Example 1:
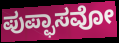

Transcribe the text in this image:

ಪುಪ್ಫಾಸವೋ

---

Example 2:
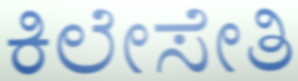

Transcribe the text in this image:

ಕಿಲೇಸೇತಿ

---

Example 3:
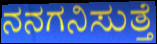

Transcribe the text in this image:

ನನಗನಿಸುತ್ತೆ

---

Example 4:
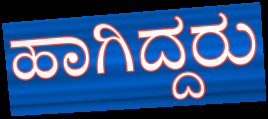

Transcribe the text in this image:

ಹಾಗಿದ್ದರು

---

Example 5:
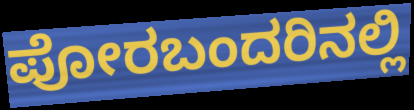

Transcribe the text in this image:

ಪೋರಬಂದರಿನಲ್ಲಿ